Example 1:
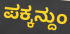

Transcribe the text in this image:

ಪಕ್ಕನ್ದುಂ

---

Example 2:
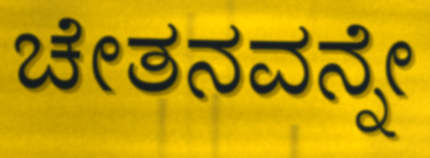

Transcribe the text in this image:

ಚೇತನವನ್ನೇ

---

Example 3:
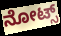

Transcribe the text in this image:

ನೋಟ್ಸ್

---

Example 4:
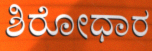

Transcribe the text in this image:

ಶಿರೋಧಾರ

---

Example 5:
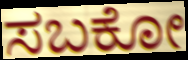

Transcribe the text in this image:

ಸಬಕೋ